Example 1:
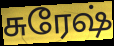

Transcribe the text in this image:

சுரேஷ்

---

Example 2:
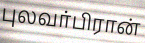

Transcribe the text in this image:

புலவர்பிரான்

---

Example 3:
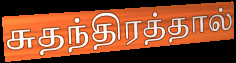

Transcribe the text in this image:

சுதந்திரத்தால்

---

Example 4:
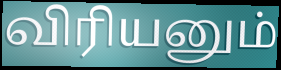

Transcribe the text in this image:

விரியனும்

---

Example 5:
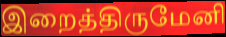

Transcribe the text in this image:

இறைத்திருமேனி